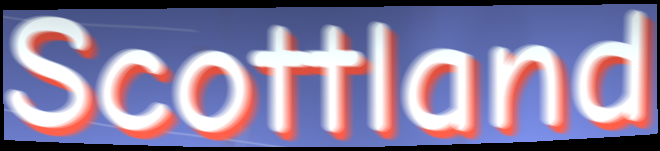
Scottland